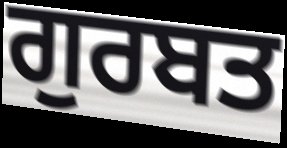
ਗੁਰਬਤ